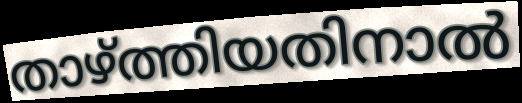
താഴ്ത്തിയതിനാൽ